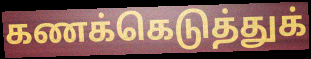
கணக்கெடுத்துக்